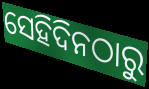
ସେହିଦିନଠାରୁ